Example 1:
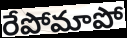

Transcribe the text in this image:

రేపోమాపో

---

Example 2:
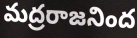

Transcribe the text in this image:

మద్రరాజనింద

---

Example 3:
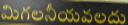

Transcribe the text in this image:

మిగలనీయవలదు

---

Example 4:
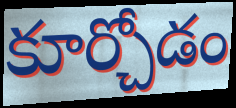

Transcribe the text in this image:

కూర్చోడం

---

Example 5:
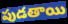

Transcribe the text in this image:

పుడతాయి